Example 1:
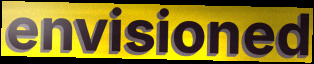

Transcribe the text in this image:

envisioned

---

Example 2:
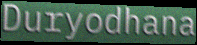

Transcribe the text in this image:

Duryodhana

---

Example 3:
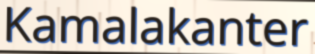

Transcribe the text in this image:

Kamalakanter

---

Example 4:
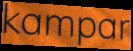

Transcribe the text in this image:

kampar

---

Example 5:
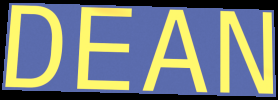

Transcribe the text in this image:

DEAN